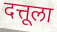
दत्तूला